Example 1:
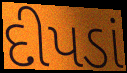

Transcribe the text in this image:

દીપડાં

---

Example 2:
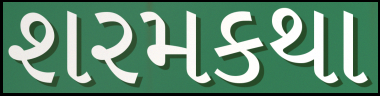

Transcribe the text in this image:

શરમકથા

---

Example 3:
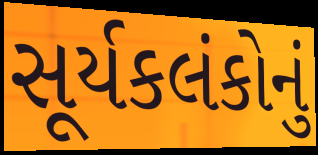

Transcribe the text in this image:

સૂર્યકલંકોનું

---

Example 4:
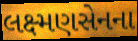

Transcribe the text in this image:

લક્ષ્મણસેનના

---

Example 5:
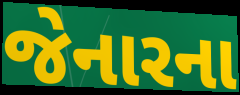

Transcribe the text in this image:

જેનારના